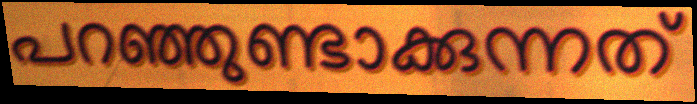
പറഞ്ഞുണ്ടാക്കുന്നത്